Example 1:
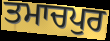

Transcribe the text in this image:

ਤਮਾਚਪੁਰ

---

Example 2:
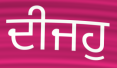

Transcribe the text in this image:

ਦੀਜਹੁ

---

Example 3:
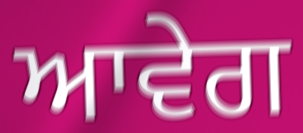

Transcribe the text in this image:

ਆਵੇਗ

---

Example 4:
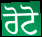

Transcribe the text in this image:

ਰੋਟੋ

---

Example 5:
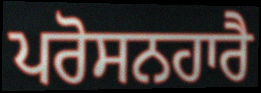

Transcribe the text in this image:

ਪਰੋਸਨਹਾਰੈ